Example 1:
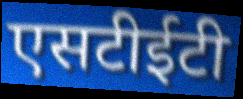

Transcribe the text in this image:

एसटीईटी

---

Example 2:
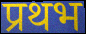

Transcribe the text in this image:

प्रथभ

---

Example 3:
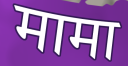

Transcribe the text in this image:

मामा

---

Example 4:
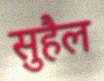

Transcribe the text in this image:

सुहैल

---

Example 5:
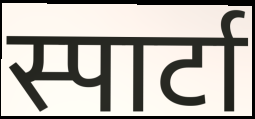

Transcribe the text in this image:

स्पार्टा